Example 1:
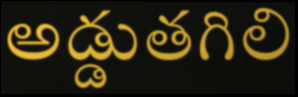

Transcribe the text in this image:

అడ్డుతగిలి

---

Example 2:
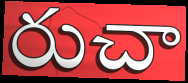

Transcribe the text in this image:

రుచా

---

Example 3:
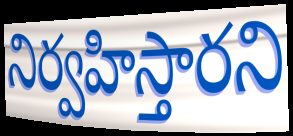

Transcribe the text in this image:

నిర్వహిస్తారని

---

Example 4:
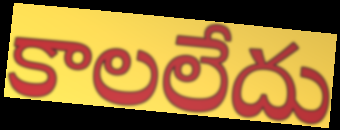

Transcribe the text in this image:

కాలలేదు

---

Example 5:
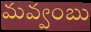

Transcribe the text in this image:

మవ్వంబు